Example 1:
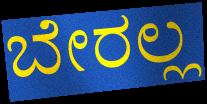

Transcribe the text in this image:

ಬೇರಲ್ಲ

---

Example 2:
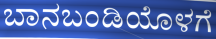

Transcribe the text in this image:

ಬಾನಬಂಡಿಯೊಳಗೆ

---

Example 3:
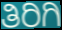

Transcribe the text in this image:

ತಿರಿಗಿ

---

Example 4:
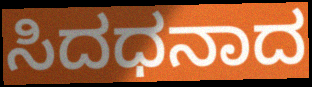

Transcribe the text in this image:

ಸಿದಧನಾದ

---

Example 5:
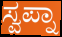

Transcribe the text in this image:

ಸ್ವಪ್ನಾ